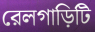
রেলগাড়িটি